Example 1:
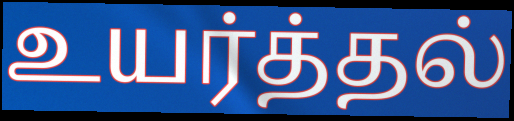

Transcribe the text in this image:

உயர்த்தல்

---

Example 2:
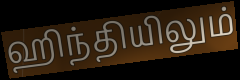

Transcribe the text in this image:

ஹிந்தியிலும்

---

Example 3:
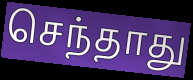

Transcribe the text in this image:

செந்தாது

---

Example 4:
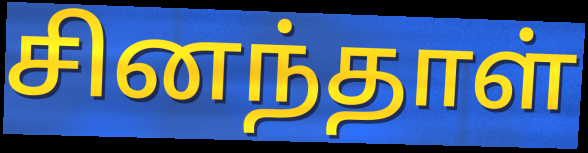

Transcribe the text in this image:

சினந்தாள்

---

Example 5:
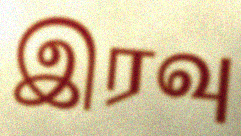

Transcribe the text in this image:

இரவு